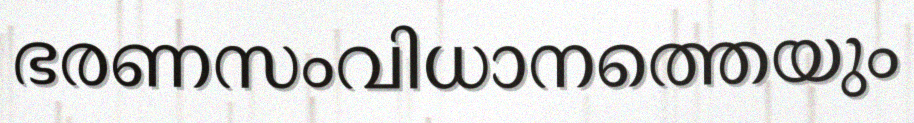
ഭരണസംവിധാനത്തെയും